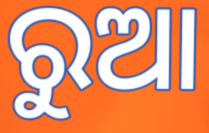
ରୁଆ